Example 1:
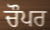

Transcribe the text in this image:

ਚੌਪਰ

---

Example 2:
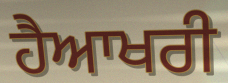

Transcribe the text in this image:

ਹੈਆਖਰੀ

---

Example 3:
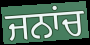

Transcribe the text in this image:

ਜਨਾਂਚ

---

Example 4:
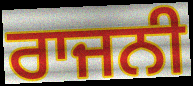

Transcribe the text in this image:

ਰਾਜਨੀ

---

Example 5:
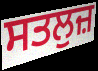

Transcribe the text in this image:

ਸਤਲੁਜ਼